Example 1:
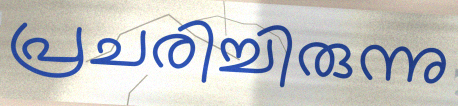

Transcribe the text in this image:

പ്രചരിച്ചിരുന്നു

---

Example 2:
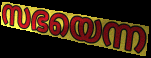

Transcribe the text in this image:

സഭയെന്ന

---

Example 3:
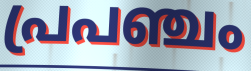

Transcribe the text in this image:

പ്രപഞ്ചം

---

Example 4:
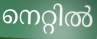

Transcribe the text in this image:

നെറ്റിൽ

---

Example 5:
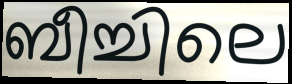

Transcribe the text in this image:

ബീച്ചിലെ